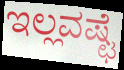
ಇಲ್ಲವಷ್ಟೆ